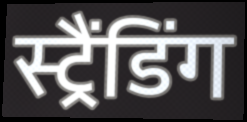
स्ट्रैंडिंग